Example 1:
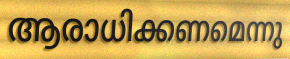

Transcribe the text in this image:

ആരാധിക്കണമെന്നു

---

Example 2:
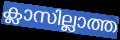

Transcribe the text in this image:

ക്ലാസില്ലാത്ത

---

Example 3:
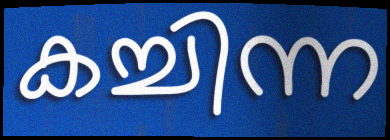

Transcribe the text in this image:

കച്ചിന്ന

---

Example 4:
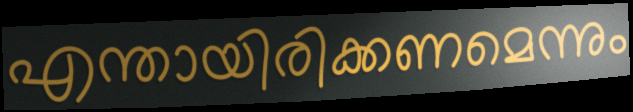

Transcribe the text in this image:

എന്തായിരിക്കണമെന്നും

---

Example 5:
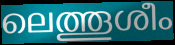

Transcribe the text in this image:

ലെത്തൂശീം